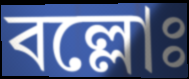
বল্লোঃ